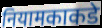
नियामकाकडे